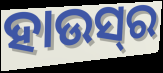
ହାଉସ୍‌ର